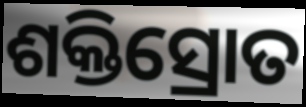
ଶକ୍ତିସ୍ରୋତ